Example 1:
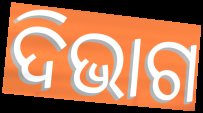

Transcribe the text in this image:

ଦିଭାଗ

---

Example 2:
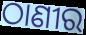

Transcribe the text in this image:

ଠାଣୀର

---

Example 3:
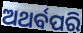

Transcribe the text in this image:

ଅଥର୍ବପରି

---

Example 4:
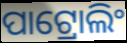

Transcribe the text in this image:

ପାଟ୍ରୋଲିଂ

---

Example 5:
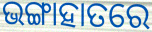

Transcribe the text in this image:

ଭଙ୍ଗାହାତରେ